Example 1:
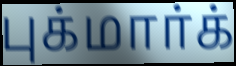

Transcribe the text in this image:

புக்மார்க்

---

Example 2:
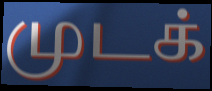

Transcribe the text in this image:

முடக்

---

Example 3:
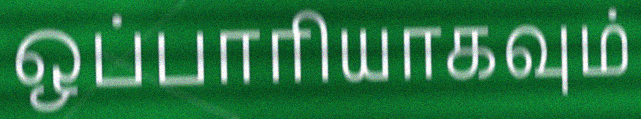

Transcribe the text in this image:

ஒப்பாரியாகவும்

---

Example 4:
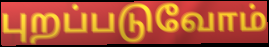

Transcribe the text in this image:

புறப்படுவோம்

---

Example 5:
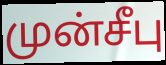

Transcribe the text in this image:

முன்சீபு